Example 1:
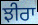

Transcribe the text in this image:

ਝੀਰਾ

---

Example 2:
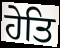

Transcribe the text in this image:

ਹੇਤਿ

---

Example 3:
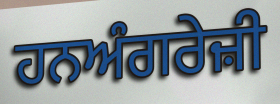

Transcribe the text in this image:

ਹਨਅੰਗਰੇਜ਼ੀ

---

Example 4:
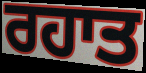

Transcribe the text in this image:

ਰਹਾਤ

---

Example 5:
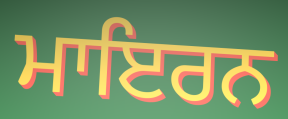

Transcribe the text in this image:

ਮਾਇਰਨ